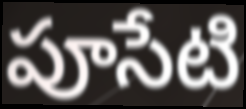
పూసేటి